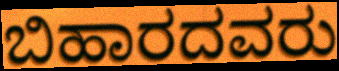
ಬಿಹಾರದವರು